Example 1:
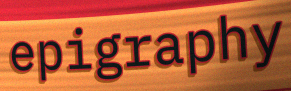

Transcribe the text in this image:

epigraphy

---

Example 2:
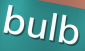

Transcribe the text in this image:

bulb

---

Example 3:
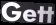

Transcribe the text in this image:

Gett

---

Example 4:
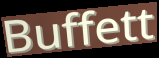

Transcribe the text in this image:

Buffett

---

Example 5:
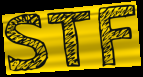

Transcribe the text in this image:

STF